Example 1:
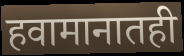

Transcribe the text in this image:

हवामानातही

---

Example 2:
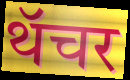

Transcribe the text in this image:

थॅचर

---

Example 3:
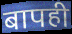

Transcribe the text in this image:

बापही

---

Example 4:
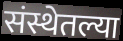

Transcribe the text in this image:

संस्थेतल्या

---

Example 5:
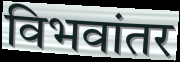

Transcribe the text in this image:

विभवांतर